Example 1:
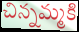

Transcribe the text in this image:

చిన్నమ్మకి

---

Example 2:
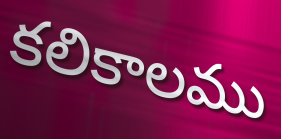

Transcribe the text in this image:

కలికాలము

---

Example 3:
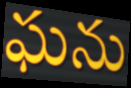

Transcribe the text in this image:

ఘను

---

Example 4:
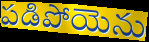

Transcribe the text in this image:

పడిపోయెను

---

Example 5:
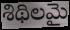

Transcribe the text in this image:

శిథిలమై